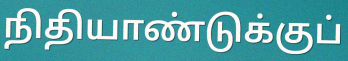
நிதியாண்டுக்குப்